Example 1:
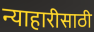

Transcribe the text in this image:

न्याहारीसाठी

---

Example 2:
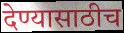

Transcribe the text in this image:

देण्यासाठीच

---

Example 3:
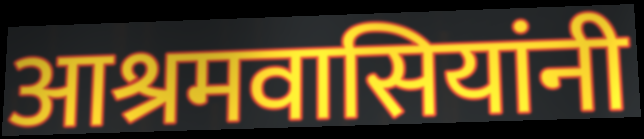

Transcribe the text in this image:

आश्रमवासियांनी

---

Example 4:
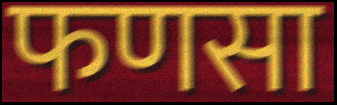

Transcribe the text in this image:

फणसा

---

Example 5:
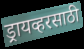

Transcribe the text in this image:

ड्रायव्हरसाठी